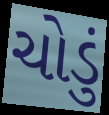
ચોડું